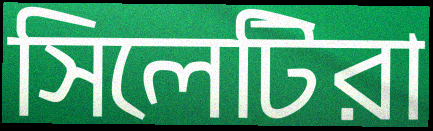
সিলেটিরা